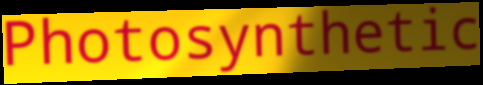
Photosynthetic